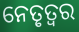
ନେତୃତ୍ବର